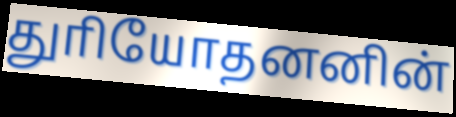
துரியோதனனின்